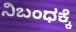
ನಿಬಂಧಕ್ಕೆ